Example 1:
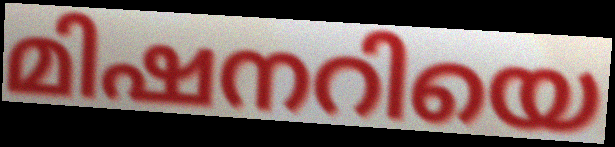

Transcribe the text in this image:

മിഷനറിയെ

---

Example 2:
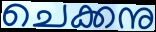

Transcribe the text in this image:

ചെക്കനു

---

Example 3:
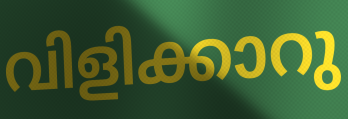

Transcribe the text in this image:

വിളിക്കാറു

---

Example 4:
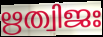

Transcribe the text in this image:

ഋത്വിജഃ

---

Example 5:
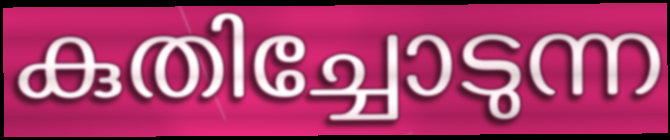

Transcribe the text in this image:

കുതിച്ചോടുന്ന